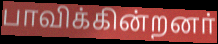
பாவிக்கின்றனர்